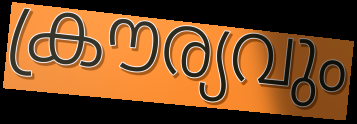
ക്രൗര്യവും